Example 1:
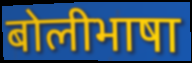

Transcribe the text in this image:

बोलीभाषा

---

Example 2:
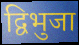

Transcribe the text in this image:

द्विभुजा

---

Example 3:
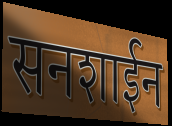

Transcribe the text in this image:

सनशाईन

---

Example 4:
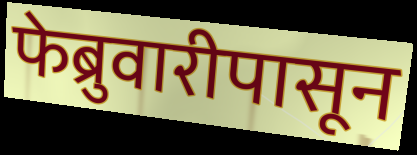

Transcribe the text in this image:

फेब्रुवारीपासून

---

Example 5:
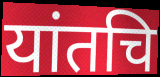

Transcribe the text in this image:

यांतचि